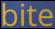
bite